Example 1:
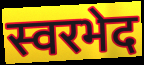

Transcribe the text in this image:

स्वरभेद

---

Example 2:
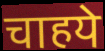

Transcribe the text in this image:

चाहये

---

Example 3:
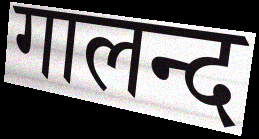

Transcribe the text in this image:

गालन्द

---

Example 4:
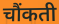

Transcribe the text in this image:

चौंकती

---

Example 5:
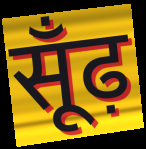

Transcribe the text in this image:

सूँढ़